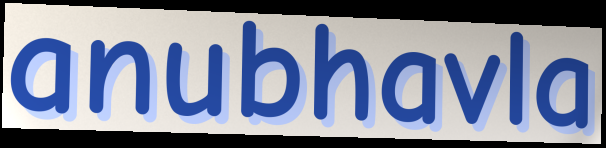
anubhavla